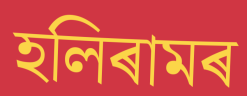
হলিৰামৰ